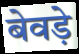
बेवड़े